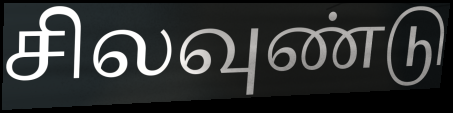
சிலவுண்டு